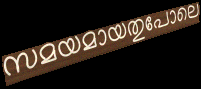
സമയമായതുപോലെ